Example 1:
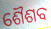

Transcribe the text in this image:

ଶୈଶବ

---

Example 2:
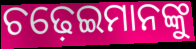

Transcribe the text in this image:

ଚଢ଼େଇମାନଙ୍କୁ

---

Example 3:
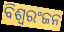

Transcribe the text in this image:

ବିଶ୍ୱରଂଜନ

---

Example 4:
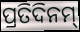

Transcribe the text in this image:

ପ୍ରତିଦିନମ୍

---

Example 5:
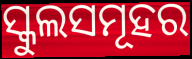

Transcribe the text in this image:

ସ୍କୁଲସମୂହର